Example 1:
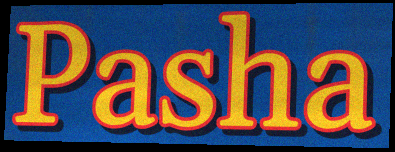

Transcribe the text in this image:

Pasha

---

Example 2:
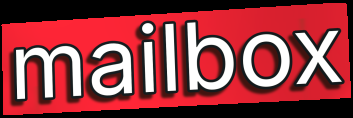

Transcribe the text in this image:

mailbox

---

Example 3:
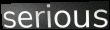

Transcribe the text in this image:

serious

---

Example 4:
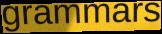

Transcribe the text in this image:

grammars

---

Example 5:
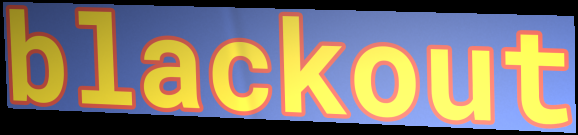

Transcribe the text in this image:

blackout